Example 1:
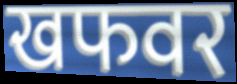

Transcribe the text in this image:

खफवर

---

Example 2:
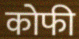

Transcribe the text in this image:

कोफी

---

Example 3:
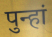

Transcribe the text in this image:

पुन्हां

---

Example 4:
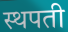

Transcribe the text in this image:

स्थपती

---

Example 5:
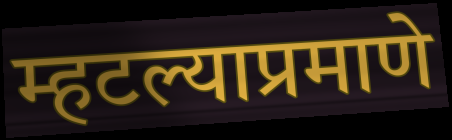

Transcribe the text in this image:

म्हटल्याप्रमाणे